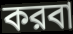
করবা